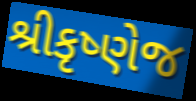
શ્રીકૃષ્ણેજ